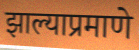
झाल्याप्रमाणे